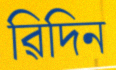
ৱিদিন